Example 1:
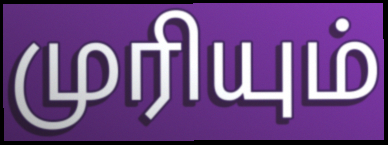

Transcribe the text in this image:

முரியும்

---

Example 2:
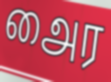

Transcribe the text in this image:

அைர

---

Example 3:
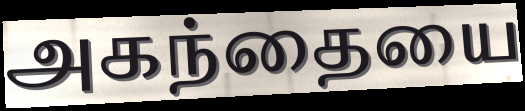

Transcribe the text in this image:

அகந்தையை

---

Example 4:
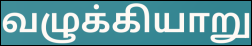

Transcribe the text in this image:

வழுக்கியாறு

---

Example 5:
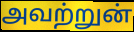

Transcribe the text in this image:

அவற்றுன்